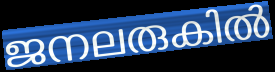
ജനലരുകിൽ